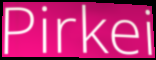
Pirkei